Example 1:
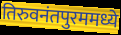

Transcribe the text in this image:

तिरुवनंतपुरममध्ये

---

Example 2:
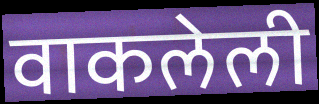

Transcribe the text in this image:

वाकलेली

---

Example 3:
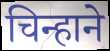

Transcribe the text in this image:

चिन्हाने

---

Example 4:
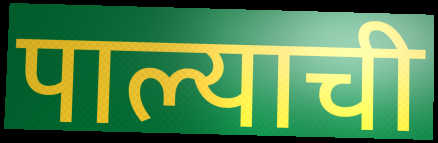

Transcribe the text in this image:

पाल्याची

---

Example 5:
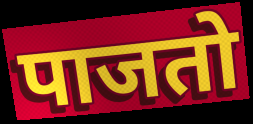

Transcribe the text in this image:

पाजतो